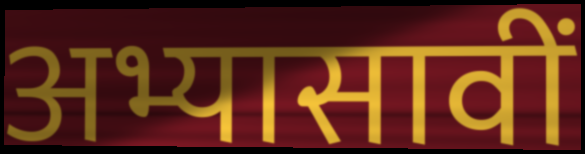
अभ्यासावीं